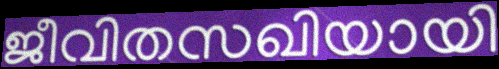
ജീവിതസഖിയായി